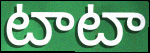
టాటా